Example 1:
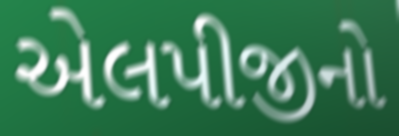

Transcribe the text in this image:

એલપીજીનો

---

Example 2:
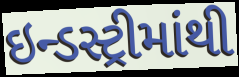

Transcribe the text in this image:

ઇન્ડસ્ટ્રીમાંથી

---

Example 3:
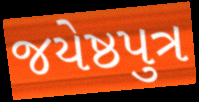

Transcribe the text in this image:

જયેષ્ઠપુત્ર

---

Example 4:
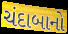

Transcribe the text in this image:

ચંદાબાનો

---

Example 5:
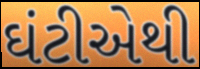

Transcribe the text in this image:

ઘંટીએથી